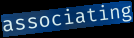
associating